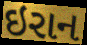
ઇરાન